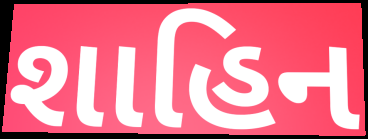
શાહિન